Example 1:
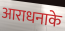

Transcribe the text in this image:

आराधनाके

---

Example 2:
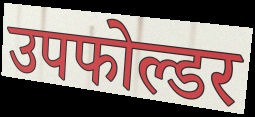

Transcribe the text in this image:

उपफोल्डर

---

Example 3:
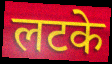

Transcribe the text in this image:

लटके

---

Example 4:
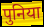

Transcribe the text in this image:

पुनिया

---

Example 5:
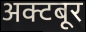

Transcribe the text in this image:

अक्टबूर